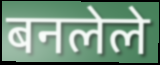
बनलेले